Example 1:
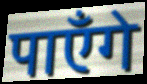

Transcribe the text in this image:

पाएँगे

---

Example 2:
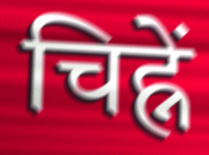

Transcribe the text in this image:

चिह्नें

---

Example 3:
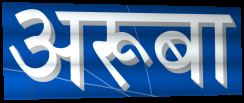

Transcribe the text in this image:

अरूबा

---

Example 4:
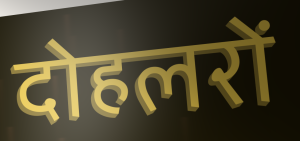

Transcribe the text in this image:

दोहलरों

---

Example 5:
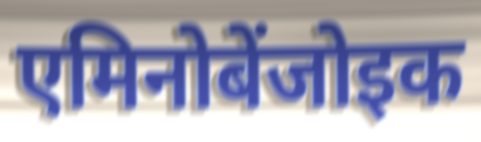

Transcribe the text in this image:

एमिनोबेंजोइक